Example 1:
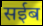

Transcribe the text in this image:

सईब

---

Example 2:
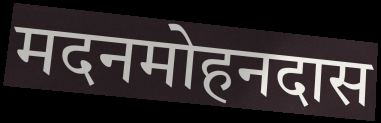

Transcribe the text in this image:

मदनमोहनदास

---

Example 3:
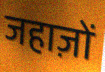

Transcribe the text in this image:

जहाज़ों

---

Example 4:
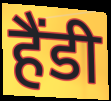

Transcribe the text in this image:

हैंडी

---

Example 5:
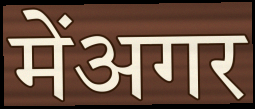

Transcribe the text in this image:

मेंअगर